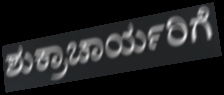
ಶುಕ್ರಾಚಾರ್ಯರಿಗೆ